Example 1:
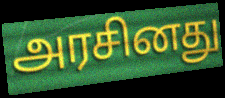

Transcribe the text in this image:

அரசினது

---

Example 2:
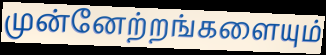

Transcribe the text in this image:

முன்னேற்றங்களையும்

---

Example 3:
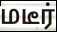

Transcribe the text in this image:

மடீர்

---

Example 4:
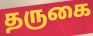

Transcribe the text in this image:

தருகை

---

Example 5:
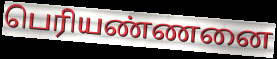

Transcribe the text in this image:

பெரியண்ணனை